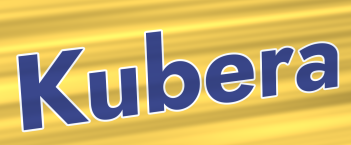
Kubera